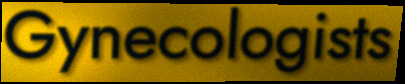
Gynecologists